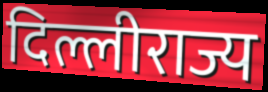
दिल्लीराज्य